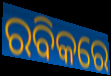
ରବିକରେ